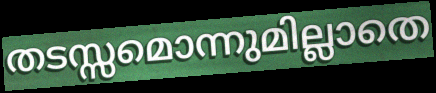
തടസ്സമൊന്നുമില്ലാതെ